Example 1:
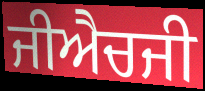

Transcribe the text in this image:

ਜੀਐਚਜੀ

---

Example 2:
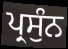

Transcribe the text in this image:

ਪ੍ਰਸੁੰਨ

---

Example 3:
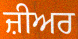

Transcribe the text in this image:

ਜ਼ੀਅਰ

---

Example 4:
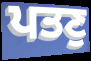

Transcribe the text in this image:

ਪਤਣੁ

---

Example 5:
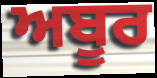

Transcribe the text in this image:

ਅਬੂਰ